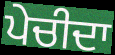
ਪੇਚੀਦਾ